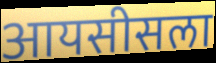
आयसीसला